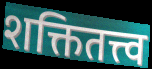
शक्तितत्त्व